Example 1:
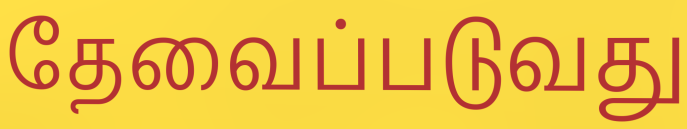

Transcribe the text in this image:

தேவைப்படுவது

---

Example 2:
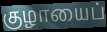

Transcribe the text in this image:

குழாயைப்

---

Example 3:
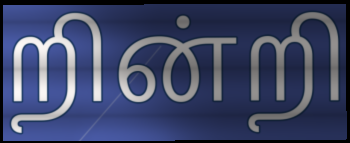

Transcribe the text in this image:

றின்றி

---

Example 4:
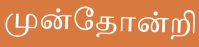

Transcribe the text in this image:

முன்தோன்றி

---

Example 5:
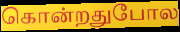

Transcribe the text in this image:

கொன்றதுபோல